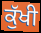
ਕੁੱਖੀ